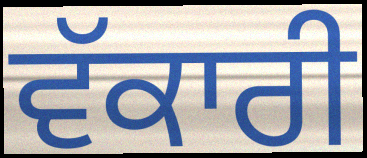
ਵੱਕਾਰੀ